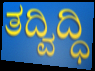
ತದ್ವಿದ್ಧಿ